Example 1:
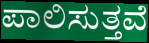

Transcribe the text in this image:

ಪಾಲಿಸುತ್ತವೆ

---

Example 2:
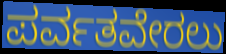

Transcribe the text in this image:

ಪರ್ವತವೇರಲು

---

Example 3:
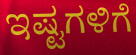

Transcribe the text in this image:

ಇಷ್ಟಗಳಿಗೆ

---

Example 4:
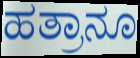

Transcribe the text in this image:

ಹತ್ರಾನೂ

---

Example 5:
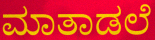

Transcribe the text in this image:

ಮಾತಾಡಲೆ